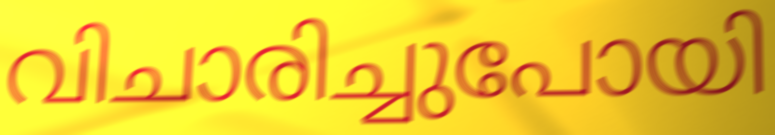
വിചാരിച്ചുപോയി